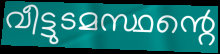
വീട്ടുടമസ്ഥന്റെ